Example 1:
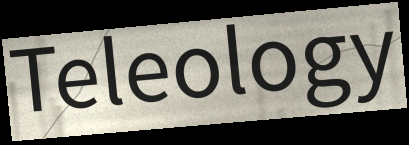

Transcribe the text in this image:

Teleology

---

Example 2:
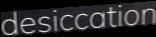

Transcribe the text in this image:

desiccation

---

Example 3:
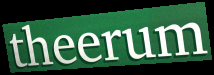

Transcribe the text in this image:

theerum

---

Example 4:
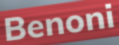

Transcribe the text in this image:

Benoni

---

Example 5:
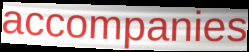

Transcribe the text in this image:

accompanies